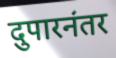
दुपारनंतर